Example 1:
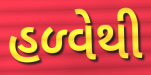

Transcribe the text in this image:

હળ્વેથી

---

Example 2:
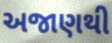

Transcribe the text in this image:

અજાણથી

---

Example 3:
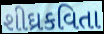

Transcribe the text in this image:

શીઘ્રકવિતા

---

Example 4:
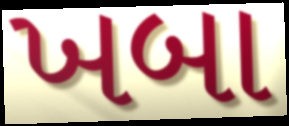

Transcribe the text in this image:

ખબા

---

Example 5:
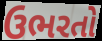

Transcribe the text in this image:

ઉભરતો